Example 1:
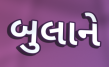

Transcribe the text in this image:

બુલાને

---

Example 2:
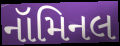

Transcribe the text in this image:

નૉમિનલ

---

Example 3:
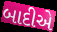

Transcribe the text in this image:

બાદીએ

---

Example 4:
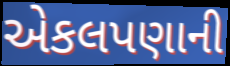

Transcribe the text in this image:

એકલપણાની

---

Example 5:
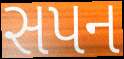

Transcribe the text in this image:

સપન